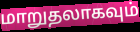
மாறுதலாகவும்